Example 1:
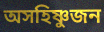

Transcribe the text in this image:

অসহিষ্ণুজন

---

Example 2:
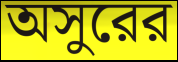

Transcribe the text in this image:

অসুরের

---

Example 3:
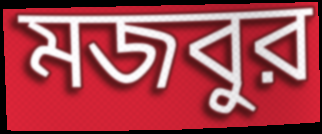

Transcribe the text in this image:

মজবুর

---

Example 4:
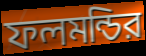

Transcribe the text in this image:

ফলমন্ডির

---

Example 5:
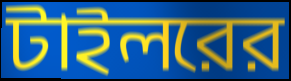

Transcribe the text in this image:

টাইলরের